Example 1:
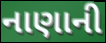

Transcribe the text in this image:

નાણાની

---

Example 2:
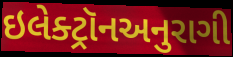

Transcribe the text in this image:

ઇલેક્ટ્રૉનઅનુરાગી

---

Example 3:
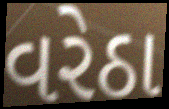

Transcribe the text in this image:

વરેઠા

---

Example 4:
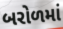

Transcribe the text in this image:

બરોળમાં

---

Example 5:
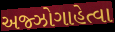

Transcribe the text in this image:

અજ્ઝોગાહેત્વા